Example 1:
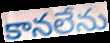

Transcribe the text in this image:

కానలేను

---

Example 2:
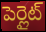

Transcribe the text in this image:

పెర్లైట్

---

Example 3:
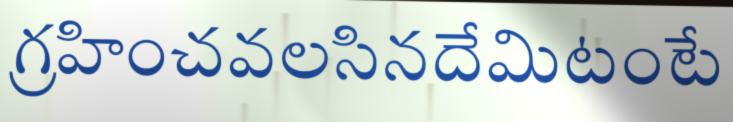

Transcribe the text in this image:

గ్రహించవలసినదేమిటంటే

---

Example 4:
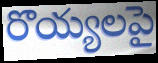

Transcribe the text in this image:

రొయ్యలపై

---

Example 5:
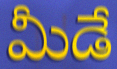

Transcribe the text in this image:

మీడే